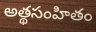
అత్థసంహితం